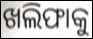
ଖଲିଫାକୁ